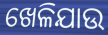
ଖେଳିଯାଉ